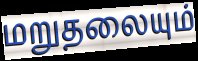
மறுதலையும்